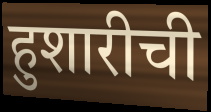
हुशारीची